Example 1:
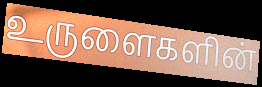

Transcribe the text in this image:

உருளைகளின்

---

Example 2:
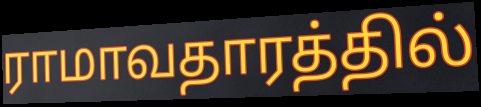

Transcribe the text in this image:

ராமாவதாரத்தில்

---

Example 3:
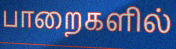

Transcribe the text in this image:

பாறைகளில்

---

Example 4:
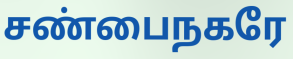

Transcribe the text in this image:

சண்பைநகரே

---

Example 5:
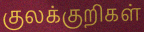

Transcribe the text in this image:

குலக்குறிகள்